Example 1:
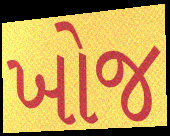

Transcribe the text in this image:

ખોજ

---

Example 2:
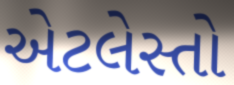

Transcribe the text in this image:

એટલેસ્તો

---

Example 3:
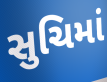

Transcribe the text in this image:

સુચિમાં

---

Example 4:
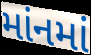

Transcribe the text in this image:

માંનમાં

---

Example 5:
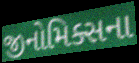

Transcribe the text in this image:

જીનોમિક્સના